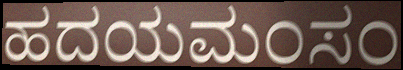
ಹದಯಮಂಸಂ